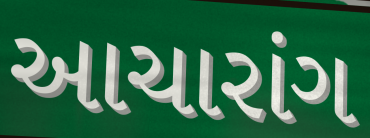
આચારાંગ